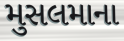
મુસલમાના